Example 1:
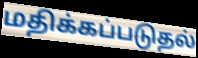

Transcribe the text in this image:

மதிக்கப்படுதல்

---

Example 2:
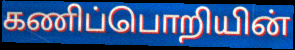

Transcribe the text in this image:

கணிப்பொறியின்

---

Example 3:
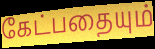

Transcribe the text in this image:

கேட்பதையும்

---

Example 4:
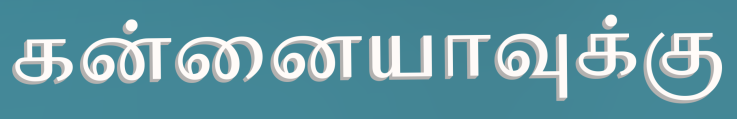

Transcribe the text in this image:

கன்னையாவுக்கு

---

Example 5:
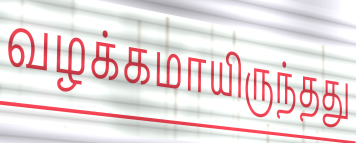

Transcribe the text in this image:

வழக்கமாயிருந்தது